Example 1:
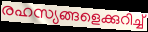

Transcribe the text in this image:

രഹസ്യങ്ങളെക്കുറിച്ച്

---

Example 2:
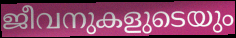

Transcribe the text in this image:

ജീവനുകളുടെയും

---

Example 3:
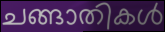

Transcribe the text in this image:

ചങ്ങാതികൾ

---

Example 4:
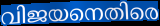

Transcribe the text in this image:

വിജയനെതിരെ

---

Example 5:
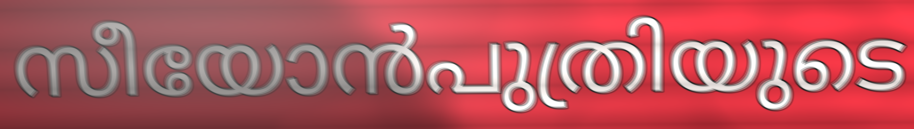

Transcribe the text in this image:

സീയോൻപുത്രിയുടെ